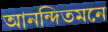
আনন্দিতমনে